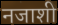
नजाशी